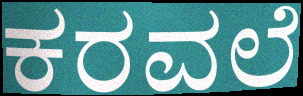
ಕರವಲೆ